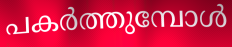
പകർത്തുമ്പോൾ